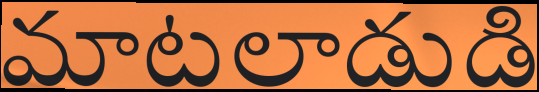
మాటలాడుడి